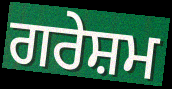
ਗਰੇਸ਼ਮ